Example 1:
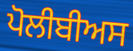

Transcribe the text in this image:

ਪੋਲੀਬੀਅਸ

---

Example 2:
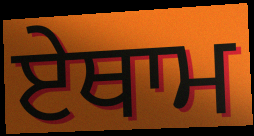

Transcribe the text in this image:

ਏਥਾਮ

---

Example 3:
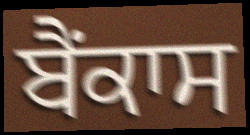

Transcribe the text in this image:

ਬੈਂਕਾਸ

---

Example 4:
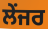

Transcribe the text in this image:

ਲੇਂਜਰ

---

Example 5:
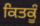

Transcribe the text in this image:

ਕਿਤਕੂੰ